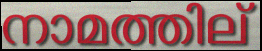
നാമത്തില്